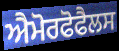
ਐਮੋਰਫੋਫੈਲਸ